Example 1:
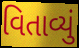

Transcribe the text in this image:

વિતાવ્યું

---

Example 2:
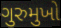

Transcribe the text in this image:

ગુરુમુખો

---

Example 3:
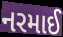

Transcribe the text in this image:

નરમાઈ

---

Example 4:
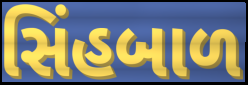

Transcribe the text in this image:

સિંહબાળ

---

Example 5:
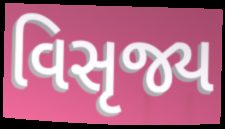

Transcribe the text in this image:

વિસૃજ્ય